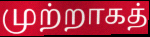
முற்றாகத்